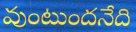
వుంటుందనేది